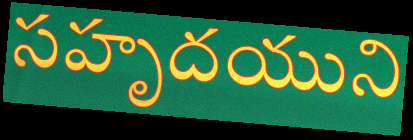
సహృదయుని